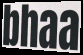
bhaa